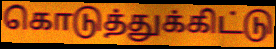
கொடுத்துக்கிட்டு